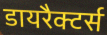
डायरैक्टर्स